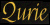
Qurie